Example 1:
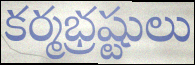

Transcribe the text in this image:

కర్మభ్రష్టులు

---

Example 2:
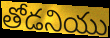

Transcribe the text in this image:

తోడనియు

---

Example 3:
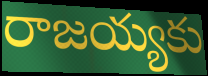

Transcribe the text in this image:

రాజయ్యకు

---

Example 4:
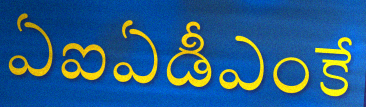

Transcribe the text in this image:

ఏఐఏడీఎంకే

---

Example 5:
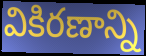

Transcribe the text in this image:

వికిరణాన్ని